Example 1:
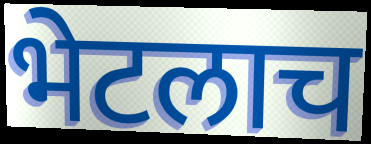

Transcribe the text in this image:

भेटलाच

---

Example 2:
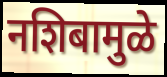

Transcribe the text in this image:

नशिबामुळे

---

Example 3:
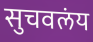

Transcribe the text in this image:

सुचवलंय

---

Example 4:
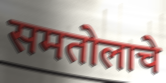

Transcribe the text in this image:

समतोलाचे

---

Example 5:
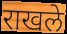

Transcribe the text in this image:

राखले